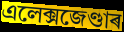
এলেক্সজেণ্ডাৰ